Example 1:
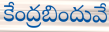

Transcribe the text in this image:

కేంద్రబిందువే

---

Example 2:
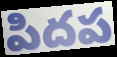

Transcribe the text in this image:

పిదప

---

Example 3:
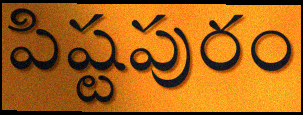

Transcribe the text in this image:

పిష్టపురం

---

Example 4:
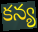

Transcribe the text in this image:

కన్య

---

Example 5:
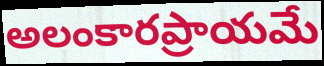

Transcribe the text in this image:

అలంకారప్రాయమే